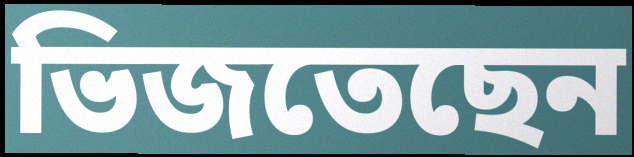
ভিজতেছেন